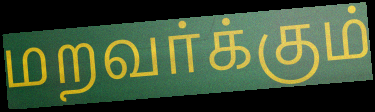
மறவர்க்கும்